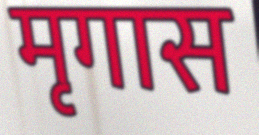
मृगास